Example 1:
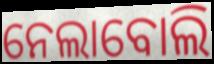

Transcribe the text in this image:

ନେଲାବୋଲି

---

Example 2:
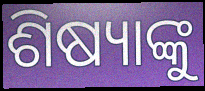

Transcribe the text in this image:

ଶିଷ୍ୟାଙ୍କୁ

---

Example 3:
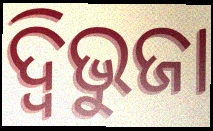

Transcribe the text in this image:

ଦ୍ଵିଭୁଜା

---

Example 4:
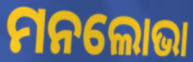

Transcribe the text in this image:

ମନଲୋଭା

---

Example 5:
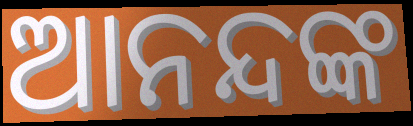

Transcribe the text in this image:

ଆନନ୍ଦଙ୍କ